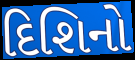
દિશિનો